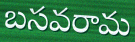
బసవరామ